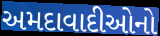
અમદાવાદીઓનો